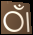
ଠାଁ